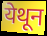
येथून